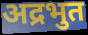
अद्रभुत